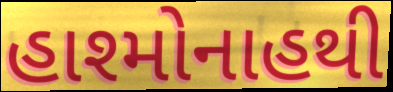
હાશ્મોનાહથી